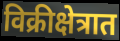
विक्रीक्षेत्रात